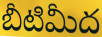
బీటిమీద